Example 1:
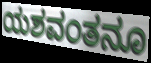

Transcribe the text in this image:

ಯಶವಂತನೂ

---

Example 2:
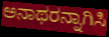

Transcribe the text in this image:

ಅನಾಥರನ್ನಾಗಿಸಿ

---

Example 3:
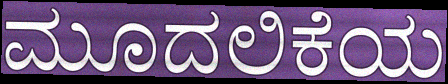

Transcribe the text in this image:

ಮೂದಲಿಕೆಯ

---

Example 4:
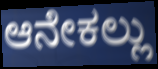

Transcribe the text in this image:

ಆನೇಕಲ್ಲು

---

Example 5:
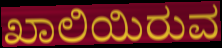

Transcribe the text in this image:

ಖಾಲಿಯಿರುವ